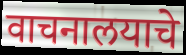
वाचनालयाचे